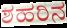
ಶಹರಿನ